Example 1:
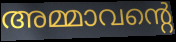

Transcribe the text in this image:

അമ്മാവന്റെ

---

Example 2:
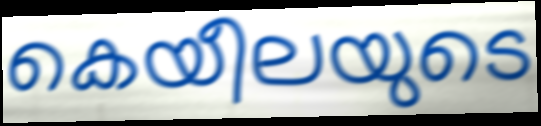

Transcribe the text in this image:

കെയീലയുടെ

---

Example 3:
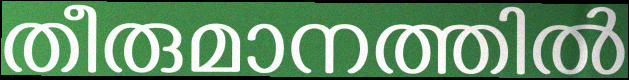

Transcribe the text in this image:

തീരുമാനത്തിൽ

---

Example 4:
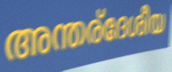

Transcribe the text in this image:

അന്തര്ദേശീയ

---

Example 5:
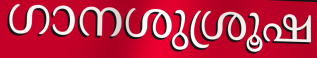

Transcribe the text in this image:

ഗാനശുശ്രൂഷ